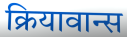
क्रियावान्स